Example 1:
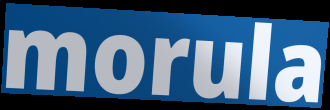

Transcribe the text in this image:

morula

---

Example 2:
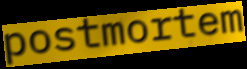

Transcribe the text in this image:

postmortem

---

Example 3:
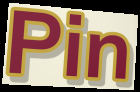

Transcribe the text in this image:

Pin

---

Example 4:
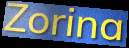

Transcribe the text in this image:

Zorina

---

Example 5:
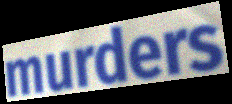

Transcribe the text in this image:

murders